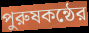
পুরুষকন্ঠের